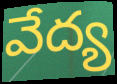
వేద్య